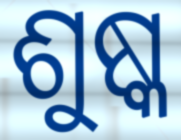
ଶୁଷ୍କ